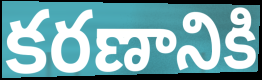
కరణానికి